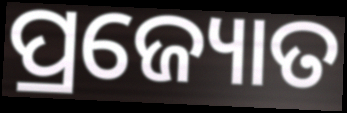
ପ୍ରଜ୍ୟୋତ